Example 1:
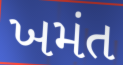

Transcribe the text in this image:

ખમંત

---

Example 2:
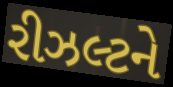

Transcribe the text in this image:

રીઝલ્ટને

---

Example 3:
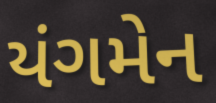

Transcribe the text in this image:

યંગમેન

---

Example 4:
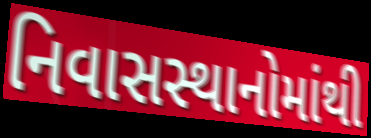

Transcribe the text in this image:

નિવાસસ્થાનોમાંથી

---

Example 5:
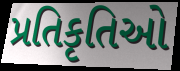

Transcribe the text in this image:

પ્રતિકૃતિઓ